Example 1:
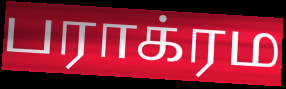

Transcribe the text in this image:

பராக்ரம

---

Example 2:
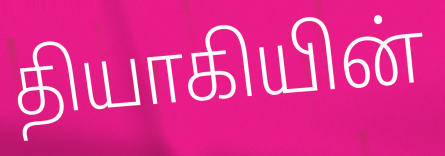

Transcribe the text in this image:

தியாகியின்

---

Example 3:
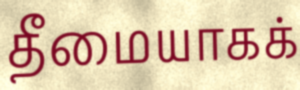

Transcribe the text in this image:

தீமையாகக்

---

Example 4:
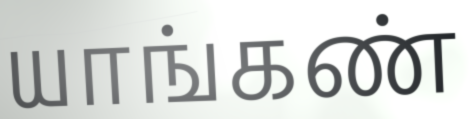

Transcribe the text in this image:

யாங்கண்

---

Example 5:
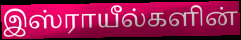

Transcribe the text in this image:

இஸ்ராயீல்களின்